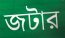
জটার